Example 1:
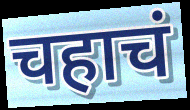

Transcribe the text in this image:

चहाचं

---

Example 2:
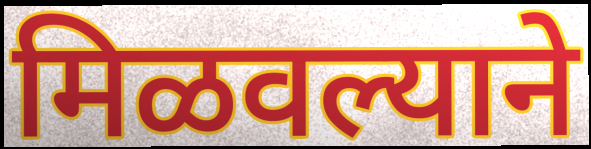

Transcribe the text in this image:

मिळवल्याने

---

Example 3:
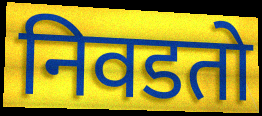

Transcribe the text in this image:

निवडतो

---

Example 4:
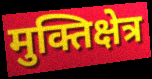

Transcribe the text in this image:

मुक्तिक्षेत्र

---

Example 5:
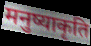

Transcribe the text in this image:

मनुष्याकृति